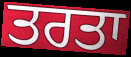
ਤਰਤਾ